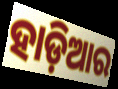
ହାଡ଼ିଆର